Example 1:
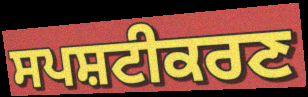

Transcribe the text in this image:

ਸਪਸ਼ਟੀਕਰਣ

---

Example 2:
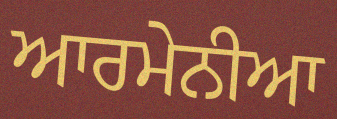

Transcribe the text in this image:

ਆਰਮੇਨੀਆ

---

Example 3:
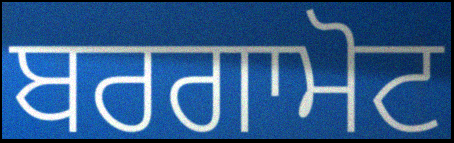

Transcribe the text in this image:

ਬਰਗਾਮੋਟ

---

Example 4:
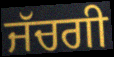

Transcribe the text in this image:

ਜੱਚਗੀ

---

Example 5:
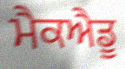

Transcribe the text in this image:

ਮੈਕਐਡੂ